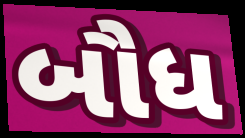
બૌધ